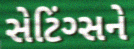
સેટિંગ્સને